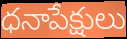
ధనాపేక్షులు